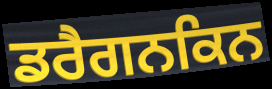
ਡਰੈਗਨਕਿਨ